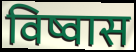
विष्वास